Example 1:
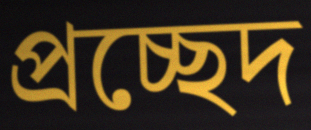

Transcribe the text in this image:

প্রচ্ছেদ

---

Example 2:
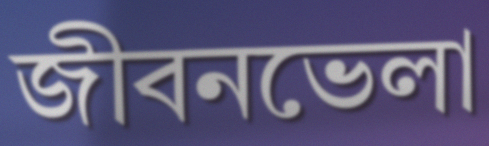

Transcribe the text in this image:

জীবনভেলা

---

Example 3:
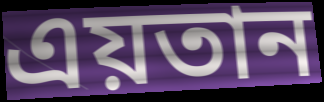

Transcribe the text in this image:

এয়তান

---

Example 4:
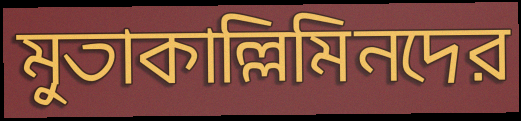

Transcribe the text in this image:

মুতাকাল্লিমিনদের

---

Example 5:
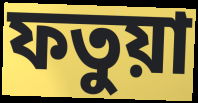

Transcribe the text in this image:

ফতুয়া